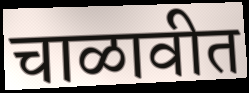
चाळावीत